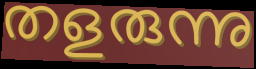
തളരുന്നു